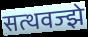
सत्थवज्झे